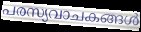
പരസ്യവാചകങ്ങൾ